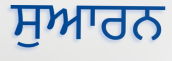
ਸੁਆਰਨ